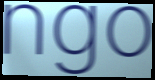
ngo